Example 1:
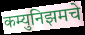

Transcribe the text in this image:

कम्युनिझमचे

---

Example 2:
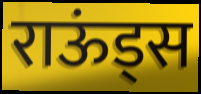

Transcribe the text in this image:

राऊंड्स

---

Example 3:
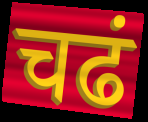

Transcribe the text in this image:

चढं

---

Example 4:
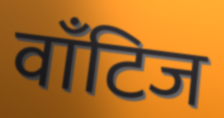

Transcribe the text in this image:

वाँटिज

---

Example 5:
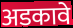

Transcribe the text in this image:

अडकावे